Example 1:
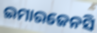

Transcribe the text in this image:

ଇମାରଜେନସି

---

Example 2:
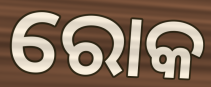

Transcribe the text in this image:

ରୋକ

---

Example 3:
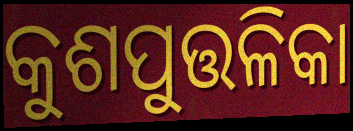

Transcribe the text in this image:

କୁଶପୁତ୍ତଳିକା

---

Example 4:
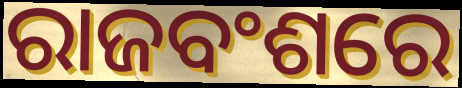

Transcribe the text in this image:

ରାଜବଂଶରେ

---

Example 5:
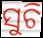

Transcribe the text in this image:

ସୁଚି